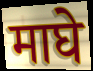
माघे